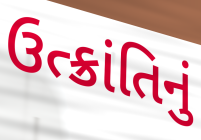
ઉત્ક્રાંતિનું